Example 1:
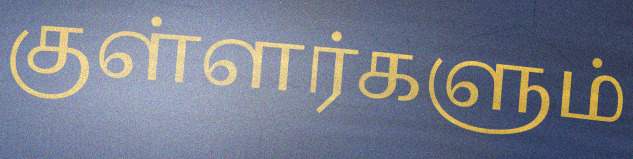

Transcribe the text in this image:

குள்ளர்களும்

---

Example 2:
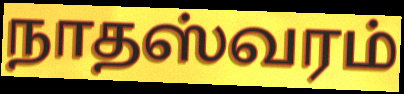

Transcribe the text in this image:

நாதஸ்வரம்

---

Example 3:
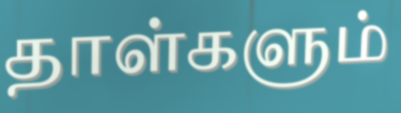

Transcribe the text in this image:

தாள்களும்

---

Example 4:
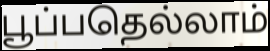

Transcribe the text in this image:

பூப்பதெல்லாம்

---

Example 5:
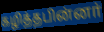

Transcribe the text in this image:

கழித்தபின்னர்